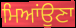
ਮਿਆਂਉਣਾ